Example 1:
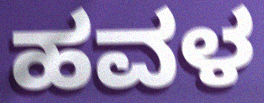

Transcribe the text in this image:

ಹವಳ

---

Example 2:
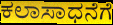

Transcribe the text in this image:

ಕಲಾಸಾಧನೆಗೆ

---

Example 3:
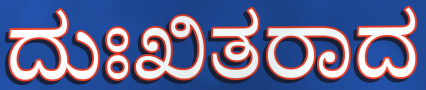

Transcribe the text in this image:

ದುಃಖಿತರಾದ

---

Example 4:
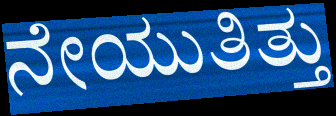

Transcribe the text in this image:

ನೇಯುತಿತ್ತು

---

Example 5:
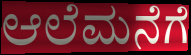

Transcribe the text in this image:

ಆಲೆಮನೆಗೆ